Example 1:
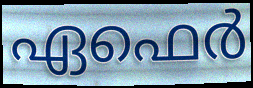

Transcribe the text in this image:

ഏഫെർ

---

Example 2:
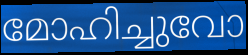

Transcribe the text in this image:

മോഹിച്ചുവോ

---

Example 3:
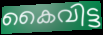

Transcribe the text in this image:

കൈവിട്ട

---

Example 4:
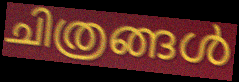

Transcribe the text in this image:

ചിത്രങ്ങൾ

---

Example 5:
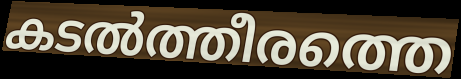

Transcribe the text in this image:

കടൽത്തീരത്തെ